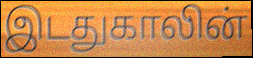
இடதுகாலின்